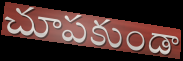
చూపకుండా